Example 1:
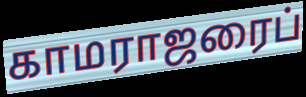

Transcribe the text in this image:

காமராஜரைப்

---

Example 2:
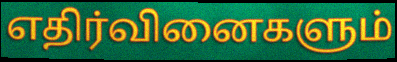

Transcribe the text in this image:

எதிர்வினைகளும்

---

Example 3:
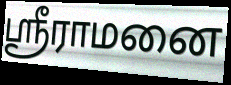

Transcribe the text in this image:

ஸ்ரீராமனை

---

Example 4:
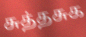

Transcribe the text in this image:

சுத்தசுக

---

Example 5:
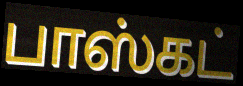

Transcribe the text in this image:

பாஸ்கட்